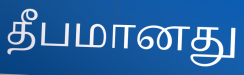
தீபமானது